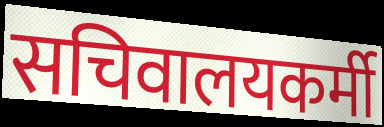
सचिवालयकर्मी